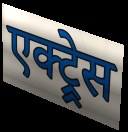
एक्ट्र्रेस